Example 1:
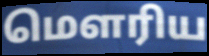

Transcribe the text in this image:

மெளரிய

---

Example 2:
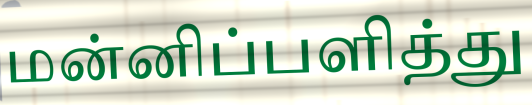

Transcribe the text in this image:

மன்னிப்பளித்து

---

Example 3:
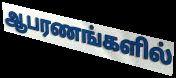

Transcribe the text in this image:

ஆபரணங்களில்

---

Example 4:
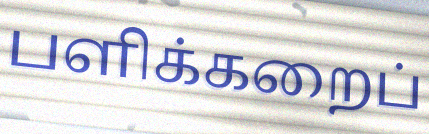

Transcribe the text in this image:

பளிக்கறைப்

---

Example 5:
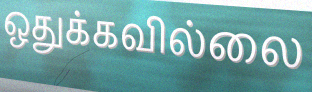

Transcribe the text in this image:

ஒதுக்கவில்லை